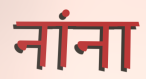
नांना